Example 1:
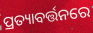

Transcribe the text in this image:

ପ୍ରତ୍ୟାବର୍ତ୍ତନରେ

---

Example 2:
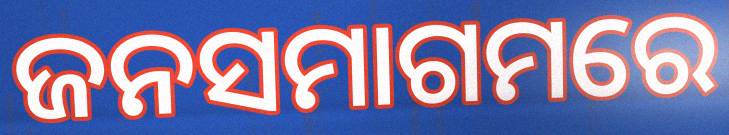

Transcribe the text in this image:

ଜନସମାଗମରେ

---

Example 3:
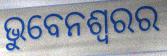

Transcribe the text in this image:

ଭୁବେନଶ୍ବରର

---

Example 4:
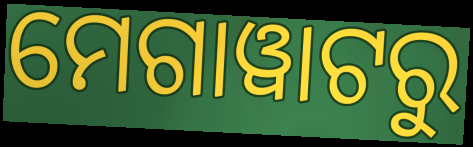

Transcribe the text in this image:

ମେଗାୱାଟରୁ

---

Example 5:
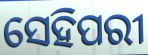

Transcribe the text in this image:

ସେହିପରୀ